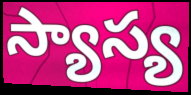
స్యాస్య